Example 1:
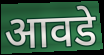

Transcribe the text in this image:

आवडे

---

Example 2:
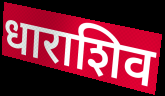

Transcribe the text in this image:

धाराशिव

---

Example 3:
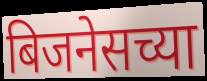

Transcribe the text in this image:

बिजनेसच्या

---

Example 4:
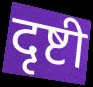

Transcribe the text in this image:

दृष्टी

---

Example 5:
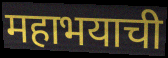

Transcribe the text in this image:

महाभयाची